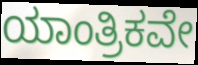
ಯಾಂತ್ರಿಕವೇ